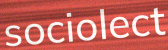
sociolect